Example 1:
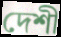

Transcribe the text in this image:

দেশী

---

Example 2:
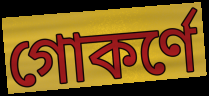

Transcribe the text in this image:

গোকর্ণে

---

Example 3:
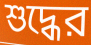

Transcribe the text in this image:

শুদ্ধের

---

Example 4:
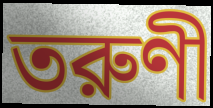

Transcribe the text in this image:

তরুণী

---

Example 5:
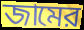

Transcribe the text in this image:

জামের